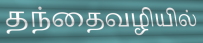
தந்தைவழியில்